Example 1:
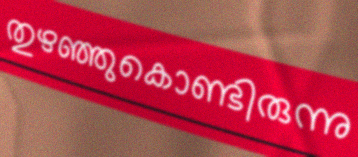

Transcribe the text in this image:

തുഴഞ്ഞുകൊണ്ടിരുന്നു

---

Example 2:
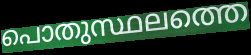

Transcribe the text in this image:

പൊതുസ്ഥലത്തെ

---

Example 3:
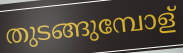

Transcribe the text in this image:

തുടങ്ങുമ്പോള്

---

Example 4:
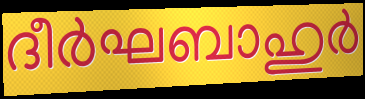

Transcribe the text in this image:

ദീർഘബാഹുർ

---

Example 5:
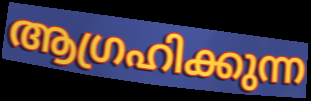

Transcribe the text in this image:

ആഗ്രഹിക്കുന്ന